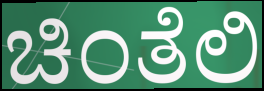
ಚಿಂತೆಲಿ